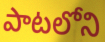
పాటలోని